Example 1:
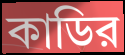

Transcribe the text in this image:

কাডির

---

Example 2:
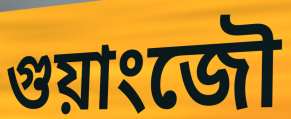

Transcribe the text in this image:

গুয়াংজৌ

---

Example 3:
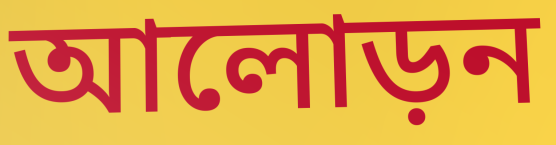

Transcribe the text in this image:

আলোড়ন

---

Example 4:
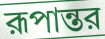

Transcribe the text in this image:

রূপান্তর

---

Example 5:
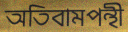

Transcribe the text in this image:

অতিবামপন্থী